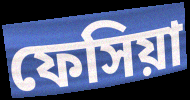
ফেসিয়া